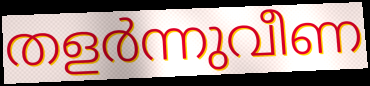
തളർന്നുവീണ